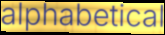
alphabetical